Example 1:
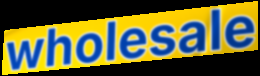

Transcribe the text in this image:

wholesale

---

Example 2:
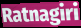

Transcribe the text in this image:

Ratnagiri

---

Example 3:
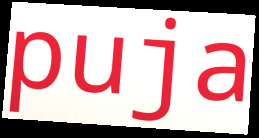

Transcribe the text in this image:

puja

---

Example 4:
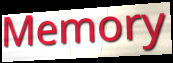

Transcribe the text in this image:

Memory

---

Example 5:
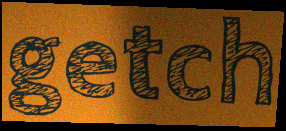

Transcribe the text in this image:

getch